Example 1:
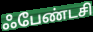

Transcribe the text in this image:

ஃபேண்டசி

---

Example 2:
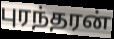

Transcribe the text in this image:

புரந்தரன்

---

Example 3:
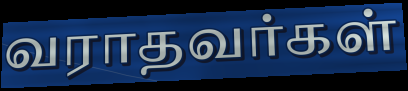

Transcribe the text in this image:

வராதவர்கள்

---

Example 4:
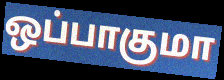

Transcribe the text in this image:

ஒப்பாகுமா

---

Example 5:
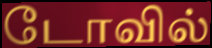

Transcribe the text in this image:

டோவில்